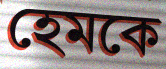
হেমকে